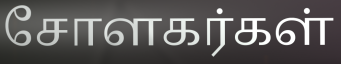
சோளகர்கள்